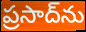
ప్రసాద్‌ను